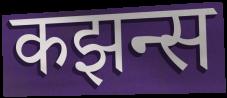
कझन्स